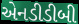
એનડીડીબી